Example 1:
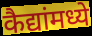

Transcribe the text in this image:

कैद्यांमध्ये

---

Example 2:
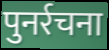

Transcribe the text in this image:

पुनर्रचना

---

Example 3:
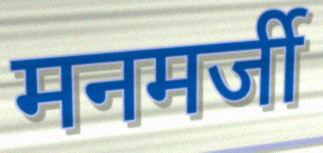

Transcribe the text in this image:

मनमर्जी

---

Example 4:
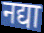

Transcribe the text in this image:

नद्या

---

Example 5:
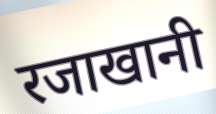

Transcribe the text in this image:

रजाखानी